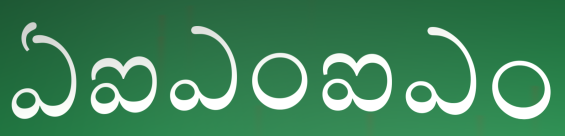
ఏఐఎంఐఎం